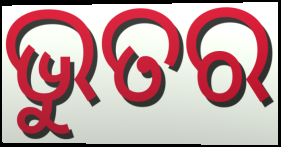
ଭୁତର